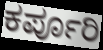
ಕರ್ಪೂರಿ